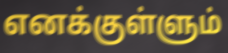
எனக்குள்ளும்